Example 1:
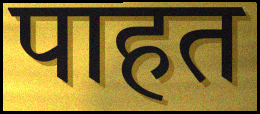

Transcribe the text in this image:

पाहत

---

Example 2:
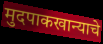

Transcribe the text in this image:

मुदपाकखान्याचे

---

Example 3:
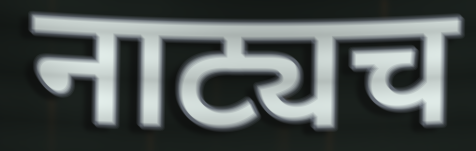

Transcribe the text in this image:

नाट्यच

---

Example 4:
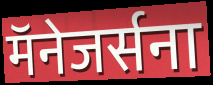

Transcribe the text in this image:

मॅनेजर्सना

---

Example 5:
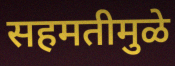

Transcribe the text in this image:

सहमतीमुळे